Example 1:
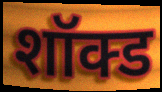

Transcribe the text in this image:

शॉक्ड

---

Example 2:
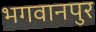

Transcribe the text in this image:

भगवानपुर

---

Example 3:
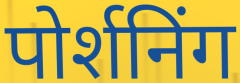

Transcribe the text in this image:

पोर्शनिंग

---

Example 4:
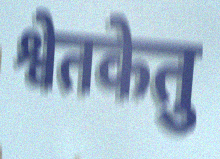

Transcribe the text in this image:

श्वेतकेतु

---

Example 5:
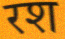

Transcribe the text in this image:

रश